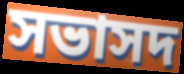
সভাসদ